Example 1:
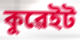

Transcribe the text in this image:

কুৱেইট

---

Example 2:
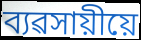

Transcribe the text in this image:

ব্যৱসায়ীয়ে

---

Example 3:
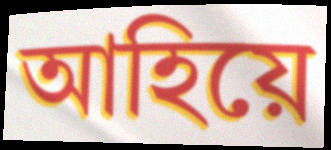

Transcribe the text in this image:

আহিয়ে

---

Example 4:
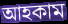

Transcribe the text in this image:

আহকাম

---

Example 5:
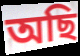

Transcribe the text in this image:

অছি